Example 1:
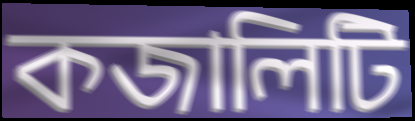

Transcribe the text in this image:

কজালিটি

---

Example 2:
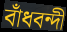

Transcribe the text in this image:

বাঁধবন্দী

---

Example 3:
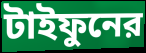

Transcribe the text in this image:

টাইফুনের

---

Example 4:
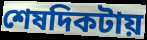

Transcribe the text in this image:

শেষদিকটায়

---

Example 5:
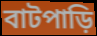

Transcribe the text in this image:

বাটপাড়ি